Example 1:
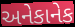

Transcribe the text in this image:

અનેકાનેક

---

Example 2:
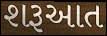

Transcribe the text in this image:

શરૂઆત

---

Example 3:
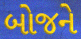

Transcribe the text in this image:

બોજને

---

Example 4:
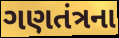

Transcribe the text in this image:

ગણતંત્રના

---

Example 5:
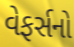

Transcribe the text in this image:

વેફર્સનો